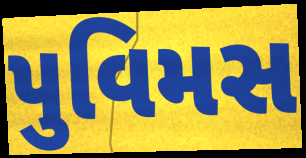
પુવિમસ